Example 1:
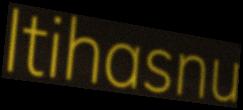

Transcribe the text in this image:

Itihasnu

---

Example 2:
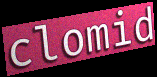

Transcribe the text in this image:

clomid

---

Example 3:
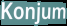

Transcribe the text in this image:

Konjum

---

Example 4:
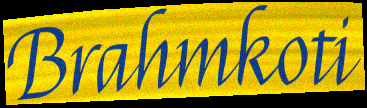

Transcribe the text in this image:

Brahmkoti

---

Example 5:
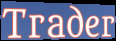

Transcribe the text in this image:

Trader